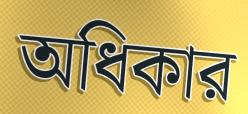
অধিকার